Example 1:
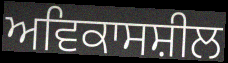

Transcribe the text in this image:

ਅਵਿਕਾਸਸ਼ੀਲ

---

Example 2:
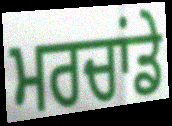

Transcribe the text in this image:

ਮਰਚਾਂਡੇ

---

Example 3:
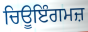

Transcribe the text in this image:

ਚਿਊਇੰਗਮਜ਼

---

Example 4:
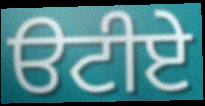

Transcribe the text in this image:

ੳਟੀਏ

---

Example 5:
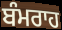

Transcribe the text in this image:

ਬੰਮਰਾਹ